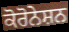
ਕੋਰੋਨੇਸ਼ਨ